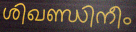
ശിഖണ്ഡിനീം